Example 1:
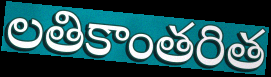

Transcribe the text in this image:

లతికాంతరిత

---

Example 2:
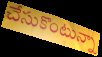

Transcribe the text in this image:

చేసుకొంటున్నా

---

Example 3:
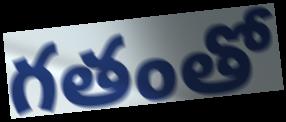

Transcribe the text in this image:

గతంతో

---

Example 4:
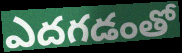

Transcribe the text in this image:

ఎదగడంతో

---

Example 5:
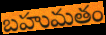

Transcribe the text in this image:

బహుమతం